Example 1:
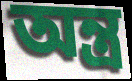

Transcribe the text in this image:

অন্ত্ৰ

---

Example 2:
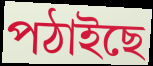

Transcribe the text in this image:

পঠাইছে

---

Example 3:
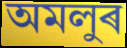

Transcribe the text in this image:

অমলুৰ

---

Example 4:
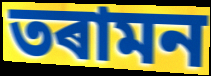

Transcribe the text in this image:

তৰামন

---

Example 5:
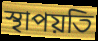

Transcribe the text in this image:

স্থাপয়তি